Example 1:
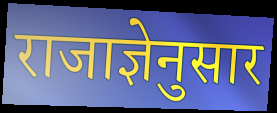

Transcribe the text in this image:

राजाज्ञेनुसार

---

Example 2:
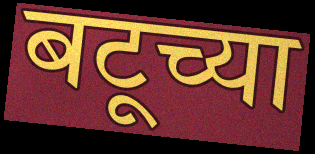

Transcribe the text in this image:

बटूच्या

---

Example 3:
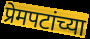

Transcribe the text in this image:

प्रेमपटांच्या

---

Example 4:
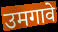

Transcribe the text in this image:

उमगावे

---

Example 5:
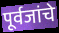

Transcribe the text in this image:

पूर्वजांचे